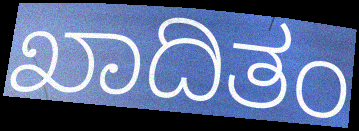
ಖಾದಿತಂ